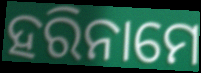
ହରିନାମେ